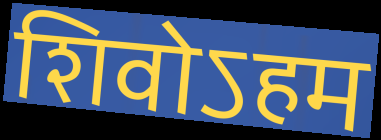
शिवोऽहम